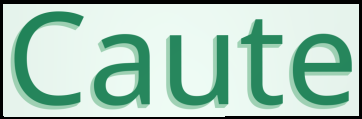
Caute